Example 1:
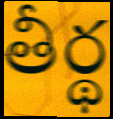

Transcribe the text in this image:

తీర్థ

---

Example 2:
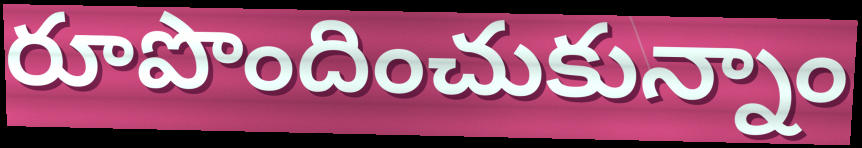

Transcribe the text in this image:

రూపొందించుకున్నాం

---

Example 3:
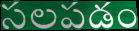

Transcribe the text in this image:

సలపడం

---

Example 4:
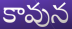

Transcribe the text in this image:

కావున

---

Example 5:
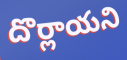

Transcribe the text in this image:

దొర్లాయని